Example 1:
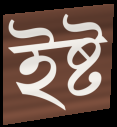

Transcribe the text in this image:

ইষ্ট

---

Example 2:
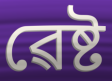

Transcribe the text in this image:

ৱেষ্ট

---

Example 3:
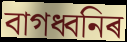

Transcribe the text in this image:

বাগধ্বনিৰ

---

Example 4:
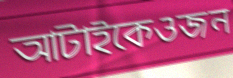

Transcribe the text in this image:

আটাইকেওজন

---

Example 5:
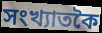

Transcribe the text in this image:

সংখ্যাতকৈ